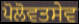
ਪੋਲੋਵਤਸੇਵ